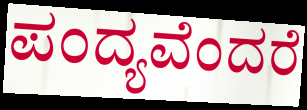
ಪಂದ್ಯವೆಂದರೆ